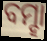
ବମ୍ହା